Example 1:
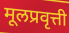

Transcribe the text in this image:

मूलप्रवृत्ती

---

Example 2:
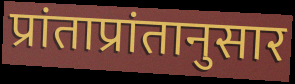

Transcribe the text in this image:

प्रांताप्रांतानुसार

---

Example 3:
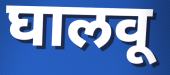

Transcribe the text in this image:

घालवू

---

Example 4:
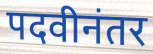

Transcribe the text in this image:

पदवीनंतर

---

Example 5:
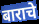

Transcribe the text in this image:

बाराचे